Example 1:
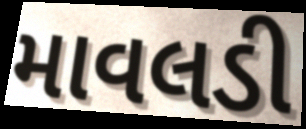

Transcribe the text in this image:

માવલડી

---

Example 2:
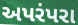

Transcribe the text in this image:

અપરંપરા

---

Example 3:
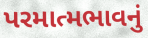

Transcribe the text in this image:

પરમાત્મભાવનું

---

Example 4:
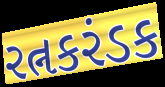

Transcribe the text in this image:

રત્નકરંડક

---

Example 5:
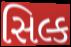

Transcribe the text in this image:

સિલ્ક